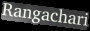
Rangachari